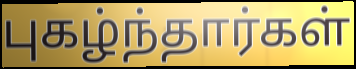
புகழ்ந்தார்கள்